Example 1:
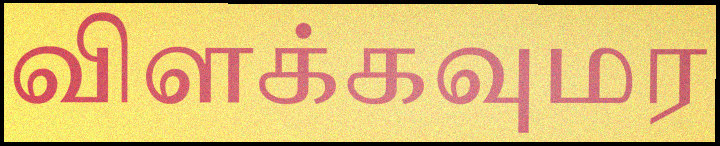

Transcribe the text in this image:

விளக்கவுமர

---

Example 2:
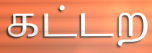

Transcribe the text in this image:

கட்டற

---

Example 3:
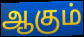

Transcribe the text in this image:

ஆகும்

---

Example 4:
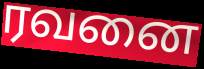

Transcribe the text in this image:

ரவனை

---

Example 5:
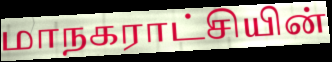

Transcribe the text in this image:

மாநகராட்சியின்